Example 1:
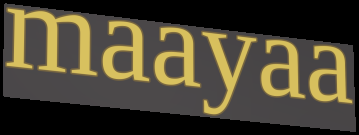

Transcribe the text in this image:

maayaa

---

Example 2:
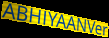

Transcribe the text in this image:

ABHIYAANVer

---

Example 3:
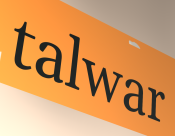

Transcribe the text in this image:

talwar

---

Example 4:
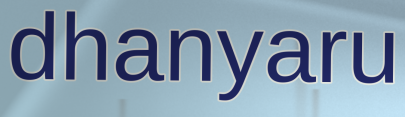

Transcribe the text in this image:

dhanyaru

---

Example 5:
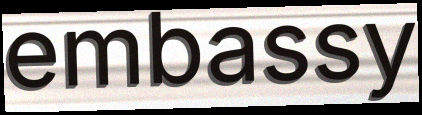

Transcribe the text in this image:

embassy